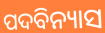
ପଦବିନ୍ୟାସ